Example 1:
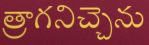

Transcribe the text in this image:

త్రాగనిచ్చెను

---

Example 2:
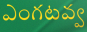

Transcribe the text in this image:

ఎంగటవ్వ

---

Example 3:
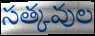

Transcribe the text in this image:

సత్కవుల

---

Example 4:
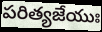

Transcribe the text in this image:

పరిత్యజేయుః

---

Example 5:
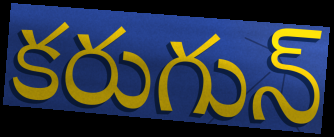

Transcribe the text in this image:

కరుగున్